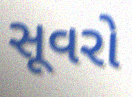
સૂવરો